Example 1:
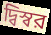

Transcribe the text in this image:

দ্বিস্বর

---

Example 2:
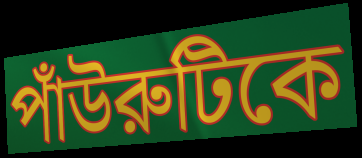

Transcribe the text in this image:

পাঁউরুটিকে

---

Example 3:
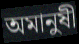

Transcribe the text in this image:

অমানুষী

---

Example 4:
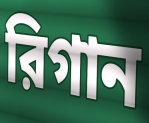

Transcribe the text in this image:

রিগান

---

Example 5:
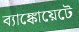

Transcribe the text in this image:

ব্যাঙ্কোয়েটে